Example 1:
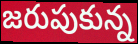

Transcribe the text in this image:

జరుపుకున్న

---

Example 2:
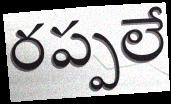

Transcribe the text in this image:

రప్పలే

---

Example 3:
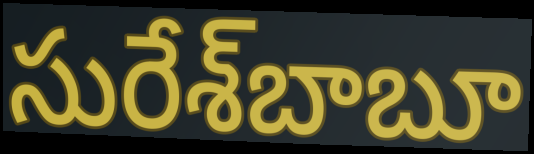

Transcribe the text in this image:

సురేశ్‌బాబూ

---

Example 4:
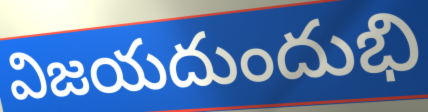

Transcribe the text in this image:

విజయదుందుభి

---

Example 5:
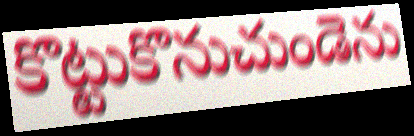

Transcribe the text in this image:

కొట్టుకొనుచుండెను